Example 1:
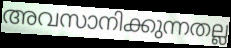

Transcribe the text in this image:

അവസാനിക്കുന്നതല്ല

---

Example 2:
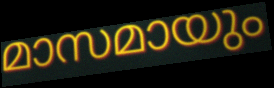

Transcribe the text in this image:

മാസമായും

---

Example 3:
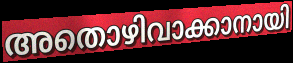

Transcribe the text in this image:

അതൊഴിവാക്കാനായി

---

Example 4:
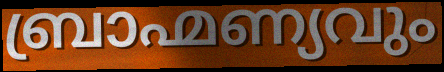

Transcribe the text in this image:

ബ്രാഹ്മണ്യവും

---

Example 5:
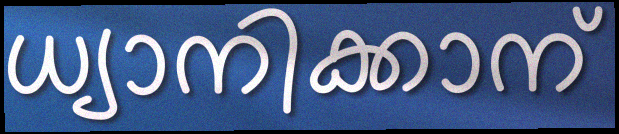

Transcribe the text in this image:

ധ്യാനിക്കാന്